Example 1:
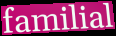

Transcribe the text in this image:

familial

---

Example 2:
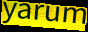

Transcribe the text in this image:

yarum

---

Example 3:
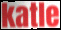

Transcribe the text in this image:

katle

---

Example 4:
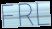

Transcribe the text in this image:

FRL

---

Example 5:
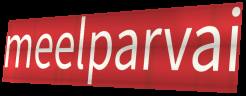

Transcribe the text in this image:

meelparvai